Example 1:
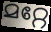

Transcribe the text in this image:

മറ്റേ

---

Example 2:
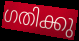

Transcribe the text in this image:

ഗതിക്കു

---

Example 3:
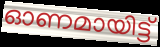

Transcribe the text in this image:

ഓണമായിട്ട്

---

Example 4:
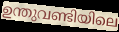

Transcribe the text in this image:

ഉന്തുവണ്ടിയിലെ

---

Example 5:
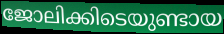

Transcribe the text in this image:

ജോലിക്കിടെയുണ്ടായ